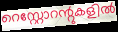
റെസ്റ്റോറന്റുകളിൽ